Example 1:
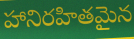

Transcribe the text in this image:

హానిరహితమైన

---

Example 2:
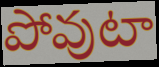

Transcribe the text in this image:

పోవుటా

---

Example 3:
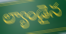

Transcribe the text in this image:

ల్యాండైన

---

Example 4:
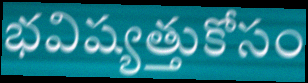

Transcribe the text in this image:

భవిష్యత్తుకోసం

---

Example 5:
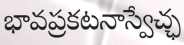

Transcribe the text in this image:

భావప్రకటనాస్వేచ్ఛ